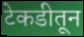
टेकडीतून